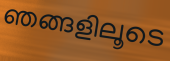
ഞങ്ങളിലൂടെ